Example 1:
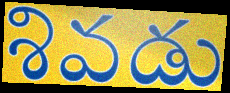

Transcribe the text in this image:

శివడు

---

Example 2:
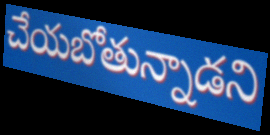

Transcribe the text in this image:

చేయబోతున్నాడని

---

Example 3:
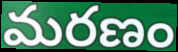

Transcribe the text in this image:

మరణం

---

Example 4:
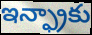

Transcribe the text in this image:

ఇన్ఫ్రాకు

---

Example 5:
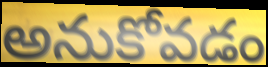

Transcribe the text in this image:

అనుకోవడం